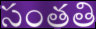
సంతతి